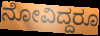
ನೋವಿದ್ದರೂ